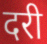
दरी